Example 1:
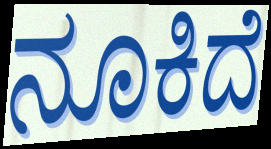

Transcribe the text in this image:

ನೂಕಿದೆ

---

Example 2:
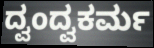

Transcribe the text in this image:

ದ್ವಂದ್ವಕರ್ಮ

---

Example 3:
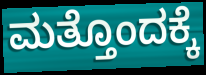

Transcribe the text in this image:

ಮತ್ತೊಂದಕ್ಕೆ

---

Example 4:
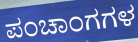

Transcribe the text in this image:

ಪಂಚಾಂಗಗಳ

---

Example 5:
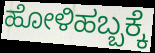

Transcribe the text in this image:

ಹೋಳಿಹಬ್ಬಕ್ಕೆ